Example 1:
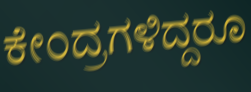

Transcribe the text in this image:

ಕೇಂದ್ರಗಳಿದ್ದರೂ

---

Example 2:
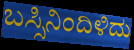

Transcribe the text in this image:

ಬಸ್ಸಿನಿಂದಿಳಿದು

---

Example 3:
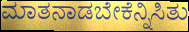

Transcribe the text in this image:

ಮಾತನಾಡಬೇಕೆನ್ನಿಸಿತು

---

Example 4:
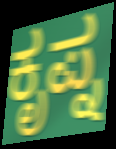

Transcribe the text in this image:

ಕೃಪ್ನ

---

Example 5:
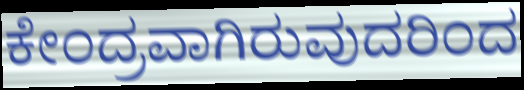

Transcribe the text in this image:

ಕೇಂದ್ರವಾಗಿರುವುದರಿಂದ